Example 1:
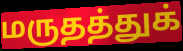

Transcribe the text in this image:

மருதத்துக்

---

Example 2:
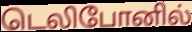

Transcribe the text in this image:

டெலிபோனில்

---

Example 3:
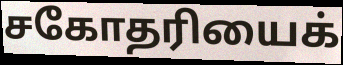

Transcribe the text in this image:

சகோதரியைக்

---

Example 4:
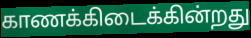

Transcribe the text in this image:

காணக்கிடைக்கின்றது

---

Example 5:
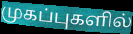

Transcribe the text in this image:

முகப்புகளில்